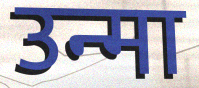
उन्मा